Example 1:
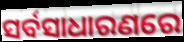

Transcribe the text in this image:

ସର୍ବସାଧାରଣରେ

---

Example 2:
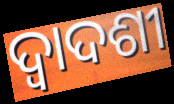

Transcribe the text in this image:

ଦ୍ବାଦଶୀ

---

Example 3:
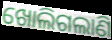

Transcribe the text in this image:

ଖୋଲିଗଲାଣି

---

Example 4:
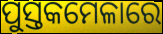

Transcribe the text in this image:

ପୁସ୍ତକମେଳାରେ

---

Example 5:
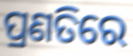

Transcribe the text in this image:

ପ୍ରଣତିରେ